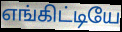
எங்கிட்டியே